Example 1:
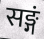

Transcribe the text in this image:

सङ्गं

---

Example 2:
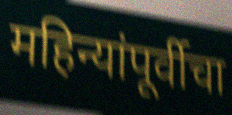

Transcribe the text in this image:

महिन्यांपूर्वीचा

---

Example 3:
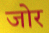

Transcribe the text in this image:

जोर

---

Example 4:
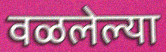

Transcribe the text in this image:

वळलेल्या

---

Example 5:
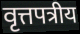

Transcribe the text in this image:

वृत्तपत्रीय